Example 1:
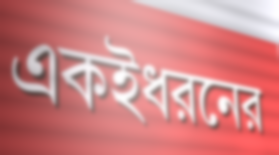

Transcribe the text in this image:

একইধরনের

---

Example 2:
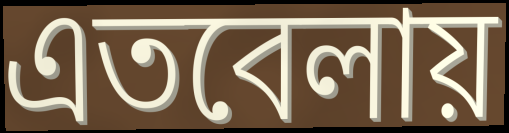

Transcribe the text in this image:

এতবেলায়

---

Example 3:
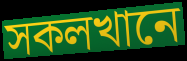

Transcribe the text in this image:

সকলখানে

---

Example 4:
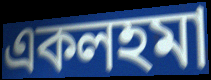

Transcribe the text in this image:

একলহমা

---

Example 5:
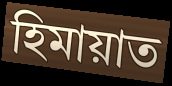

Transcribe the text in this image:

হিমায়াত